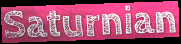
Saturnian